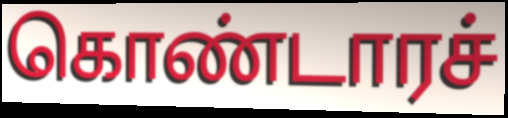
கொண்டாரச்